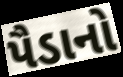
પૈડાનો